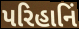
પરિહાનિં